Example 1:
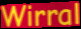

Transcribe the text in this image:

Wirral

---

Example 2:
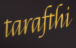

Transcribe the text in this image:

tarafthi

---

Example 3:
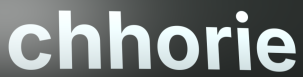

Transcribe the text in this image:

chhorie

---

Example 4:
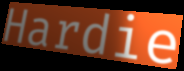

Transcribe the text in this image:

Hardie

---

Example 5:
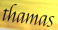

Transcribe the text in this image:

thamas